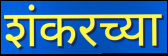
शंकरच्या